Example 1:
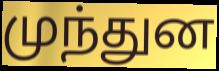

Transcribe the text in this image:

முந்துன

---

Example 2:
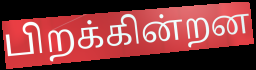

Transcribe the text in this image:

பிறக்கின்றன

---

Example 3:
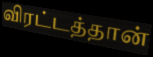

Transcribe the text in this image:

விரட்டத்தான்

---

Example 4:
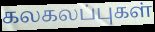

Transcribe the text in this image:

கலகலப்புகள்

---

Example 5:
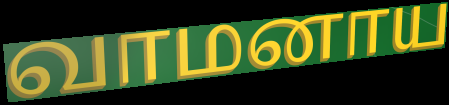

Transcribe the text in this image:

வாமனாய